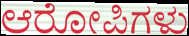
ಆರೋಪಿಗಳು